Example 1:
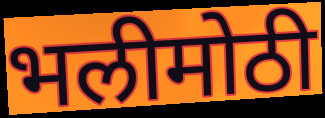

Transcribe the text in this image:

भलीमोठी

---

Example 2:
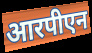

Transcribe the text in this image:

आरपीएन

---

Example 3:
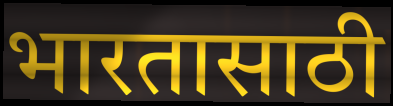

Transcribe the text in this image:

भारतासाठी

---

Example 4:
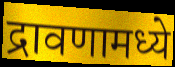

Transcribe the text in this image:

द्रावणामध्ये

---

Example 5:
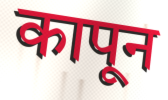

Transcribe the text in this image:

कापून